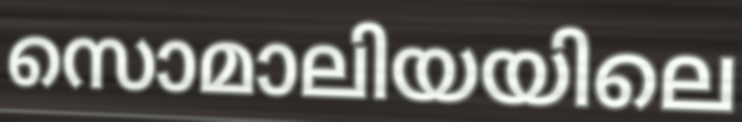
സൊമാലിയയിലെ